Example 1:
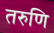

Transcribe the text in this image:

तरुणि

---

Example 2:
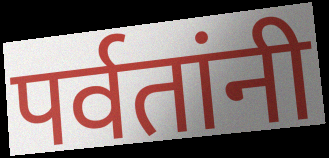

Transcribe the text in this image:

पर्वतांनी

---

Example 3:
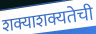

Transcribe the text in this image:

शक्याशक्यतेची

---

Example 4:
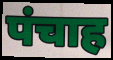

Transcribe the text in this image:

पंचाह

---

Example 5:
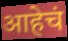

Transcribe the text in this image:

आहेचं